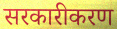
सरकारीकरण